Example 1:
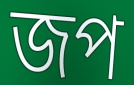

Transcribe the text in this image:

জপ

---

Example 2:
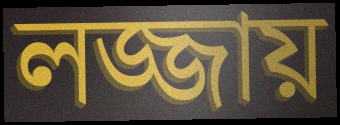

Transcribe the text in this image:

লজ্জায়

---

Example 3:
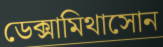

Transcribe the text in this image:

ডেক্সামিথাসোন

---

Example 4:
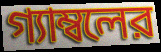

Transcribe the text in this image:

গ্যাম্বলের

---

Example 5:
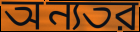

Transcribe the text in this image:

অন্যতর